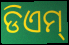
ଡିଏମ୍